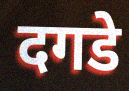
दगडे